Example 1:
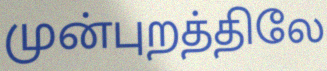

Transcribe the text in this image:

முன்புறத்திலே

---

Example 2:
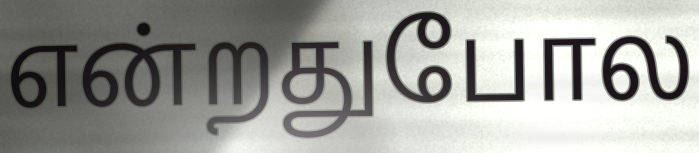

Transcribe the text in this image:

என்றதுபோல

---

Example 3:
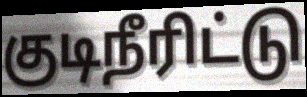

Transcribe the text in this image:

குடிநீரிட்டு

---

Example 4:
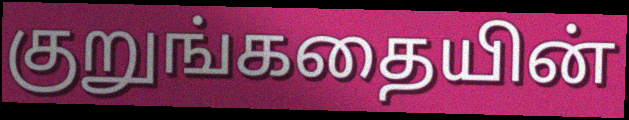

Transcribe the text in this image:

குறுங்கதையின்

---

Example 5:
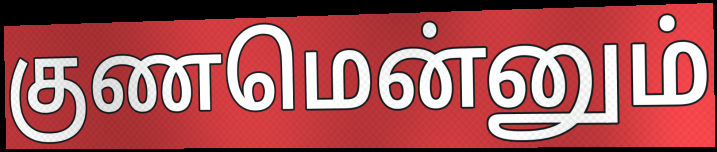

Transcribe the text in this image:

குணமென்னும்